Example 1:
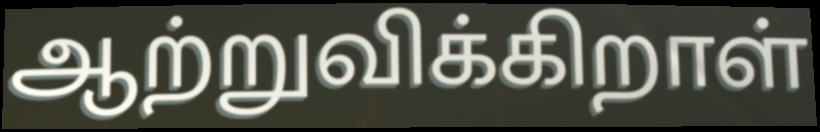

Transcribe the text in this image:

ஆற்றுவிக்கிறாள்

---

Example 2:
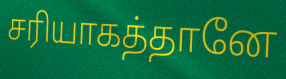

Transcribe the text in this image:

சரியாகத்தானே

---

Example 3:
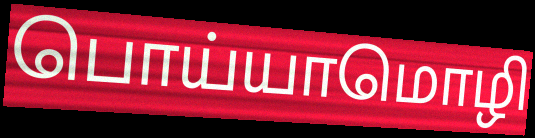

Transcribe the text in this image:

பொய்யாமொழி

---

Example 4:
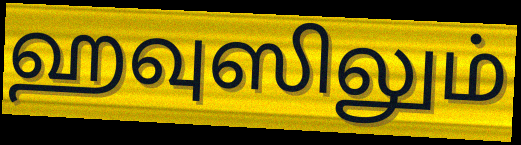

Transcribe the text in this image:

ஹவுஸிலும்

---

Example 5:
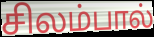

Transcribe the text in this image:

சிலம்பால்